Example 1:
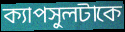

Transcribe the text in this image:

ক্যাপসুলটাকে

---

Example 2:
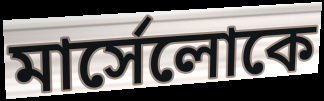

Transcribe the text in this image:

মার্সেলোকে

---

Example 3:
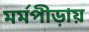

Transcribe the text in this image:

মর্মপীড়ায়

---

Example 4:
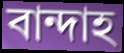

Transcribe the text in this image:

বান্দাহ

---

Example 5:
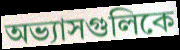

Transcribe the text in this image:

অভ্যাসগুলিকে